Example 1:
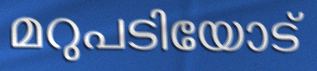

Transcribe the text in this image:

മറുപടിയോട്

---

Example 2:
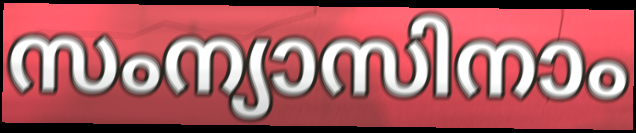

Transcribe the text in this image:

സംന്യാസിനാം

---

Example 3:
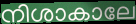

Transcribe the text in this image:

നിശാകാലേ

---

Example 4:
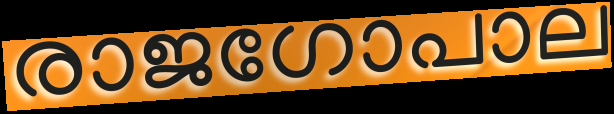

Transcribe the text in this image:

രാജഗോപാല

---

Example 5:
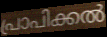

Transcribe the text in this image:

പ്രാപിക്കൽ